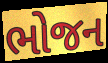
ભોજન